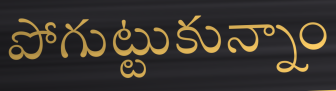
పోగుట్టుకున్నాం